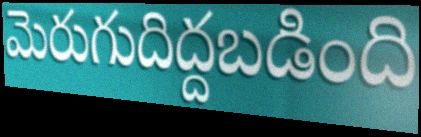
మెరుగుదిద్దబడింది